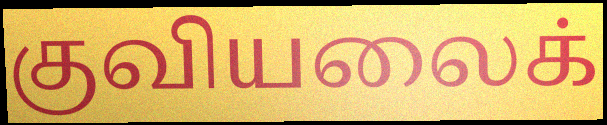
குவியலைக்